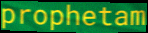
prophetam